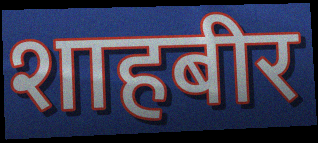
शाहबीर